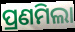
ପ୍ରଣମିଲା